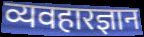
व्यवहारज्ञान